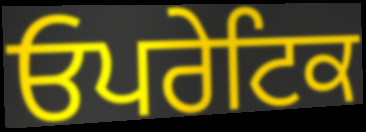
ਓਪਰੇਟਿਕ